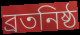
ব্রতনিষ্ঠ